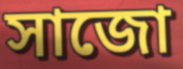
সাজো